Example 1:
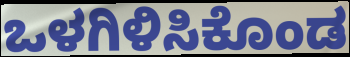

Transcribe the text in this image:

ಒಳಗಿಳಿಸಿಕೊಂಡ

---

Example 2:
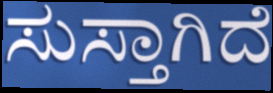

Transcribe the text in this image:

ಸುಸ್ತಾಗಿದೆ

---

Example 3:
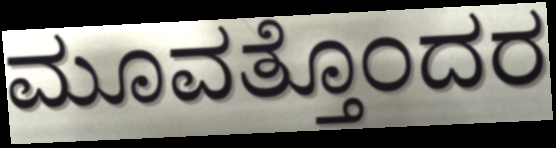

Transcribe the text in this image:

ಮೂವತ್ತೊಂದರ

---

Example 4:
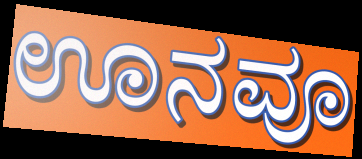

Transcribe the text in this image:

ಊನವೂ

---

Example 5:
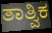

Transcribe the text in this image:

ತಾತ್ವಿಕ